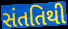
સંતતિથી